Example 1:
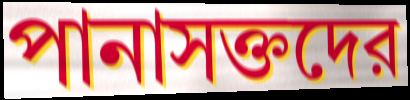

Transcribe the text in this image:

পানাসক্তদের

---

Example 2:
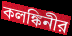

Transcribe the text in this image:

কলঙ্কিনীর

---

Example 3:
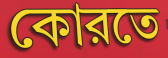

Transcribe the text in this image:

কোরতে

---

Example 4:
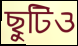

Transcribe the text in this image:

ছুটিও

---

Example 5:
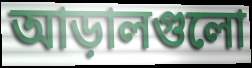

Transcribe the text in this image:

আড়ালগুলো